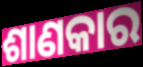
ଶାଣକାର